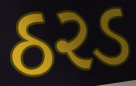
ઠરડ